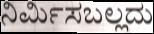
ನಿರ್ಮಿಸಬಲ್ಲದು